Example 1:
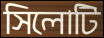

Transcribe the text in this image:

সিলোটি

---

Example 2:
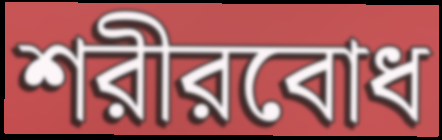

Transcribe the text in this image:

শরীরবোধ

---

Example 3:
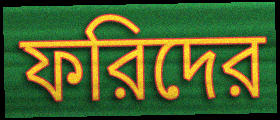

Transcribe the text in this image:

ফরিদের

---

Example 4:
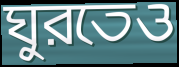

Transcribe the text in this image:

ঘুরতেও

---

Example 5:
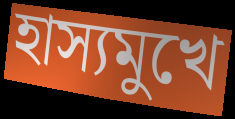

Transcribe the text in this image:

হাস্যমুখে